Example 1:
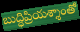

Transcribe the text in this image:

బుద్ధిప్రియశ్శాంతో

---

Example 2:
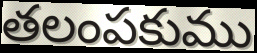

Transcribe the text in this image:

తలంపకుము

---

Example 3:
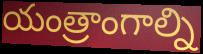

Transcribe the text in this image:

యంత్రాంగాల్ని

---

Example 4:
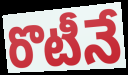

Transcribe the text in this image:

రొటీనే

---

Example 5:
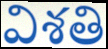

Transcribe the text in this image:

విశతి